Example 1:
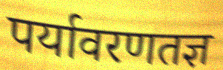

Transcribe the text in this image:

पर्यावरणतज्ञ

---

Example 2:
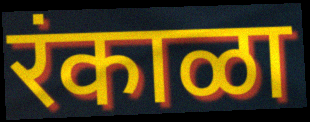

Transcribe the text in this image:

रंकाळा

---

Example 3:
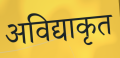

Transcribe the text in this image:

अविद्याकृत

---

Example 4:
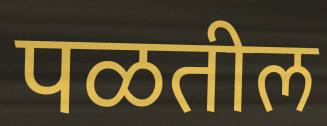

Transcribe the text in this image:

पळतील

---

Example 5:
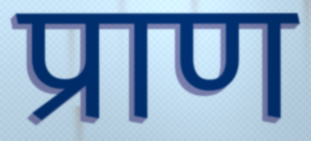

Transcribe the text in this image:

प्राण